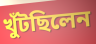
খুঁটছিলেন